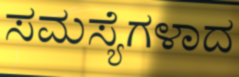
ಸಮಸ್ಯೆಗಳಾದ